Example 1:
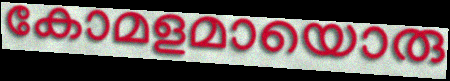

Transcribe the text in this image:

കോമളമായൊരു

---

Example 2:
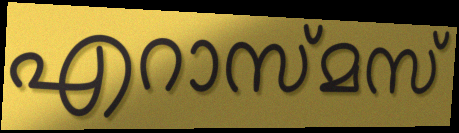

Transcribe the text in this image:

എറാസ്മസ്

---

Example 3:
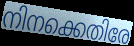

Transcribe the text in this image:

നിനക്കെതിരേ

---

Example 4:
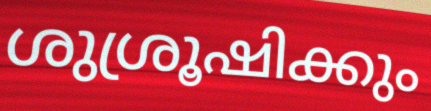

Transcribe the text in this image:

ശുശ്രൂഷിക്കും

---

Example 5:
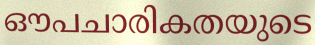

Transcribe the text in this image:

ഔപചാരികതയുടെ